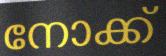
നോക്ക്